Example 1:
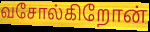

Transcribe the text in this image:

வசோல்கிறோன்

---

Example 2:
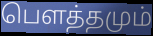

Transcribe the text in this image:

பௌத்தமும்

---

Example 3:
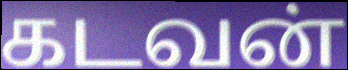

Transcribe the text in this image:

கடவன்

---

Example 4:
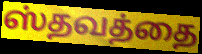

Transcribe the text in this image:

ஸ்தவத்தை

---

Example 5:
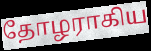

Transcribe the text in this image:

தோழராகிய